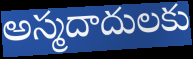
అస్మదాదులకు